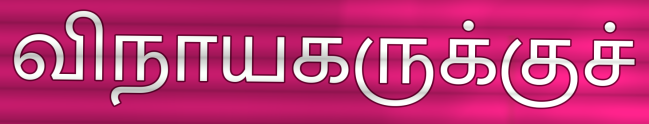
விநாயகருக்குச்